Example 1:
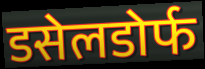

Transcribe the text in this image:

डसेलडोर्फ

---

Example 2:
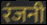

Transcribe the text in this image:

रंजनी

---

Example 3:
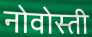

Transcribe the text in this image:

नोवोस्ती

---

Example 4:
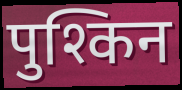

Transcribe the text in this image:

पुश्किन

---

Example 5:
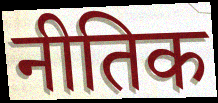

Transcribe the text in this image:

नीतिक